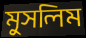
মুসলিম